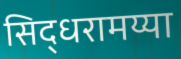
सिद्धरामय्या